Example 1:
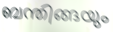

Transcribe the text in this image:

ബന്തിങ്ങയും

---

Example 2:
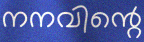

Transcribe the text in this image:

നനവിന്റെ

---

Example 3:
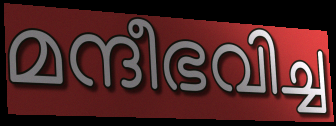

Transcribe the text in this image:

മന്ദീഭവിച്ച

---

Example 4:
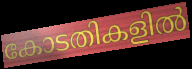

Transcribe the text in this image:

കോടതികളിൽ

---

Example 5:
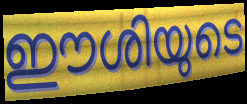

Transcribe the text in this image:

ഈശിയുടെ